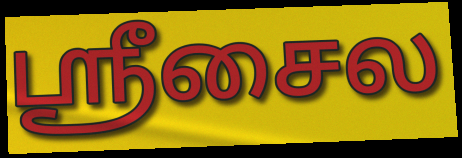
ஸ்ரீசைல